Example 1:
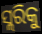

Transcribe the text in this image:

ସ୍ଲରିକୁ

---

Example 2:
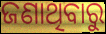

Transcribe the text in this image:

ଜଣାଥିବାରୁ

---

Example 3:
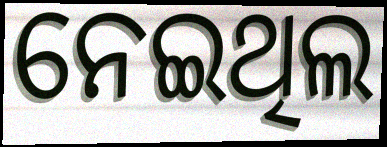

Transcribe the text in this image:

ନେଇଥିଲ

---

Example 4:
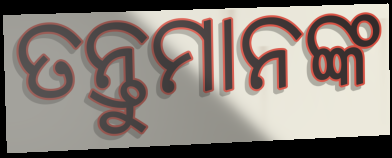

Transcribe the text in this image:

ତନ୍ତୁମାନଙ୍କ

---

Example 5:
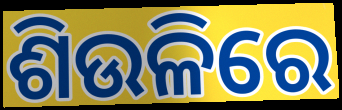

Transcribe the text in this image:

ଶିଉଳିରେ